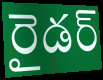
రైడర్